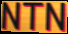
NTN